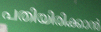
പതിയിരിക്കാൻ